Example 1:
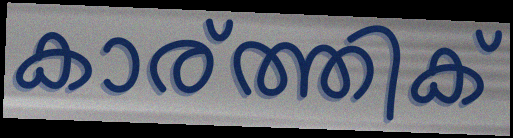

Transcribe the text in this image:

കാര്ത്തിക്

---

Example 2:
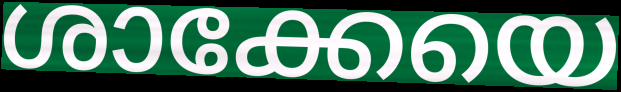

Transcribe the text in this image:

ശാക്കേയെ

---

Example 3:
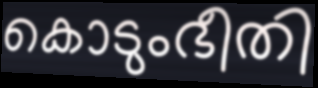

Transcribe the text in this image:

കൊടുംഭീതി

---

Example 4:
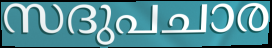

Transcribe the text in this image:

സദുപചാര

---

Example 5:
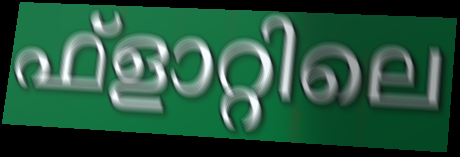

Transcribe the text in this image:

ഫ്ളാറ്റിലെ